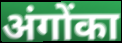
अंगोंका